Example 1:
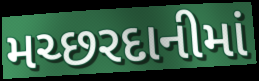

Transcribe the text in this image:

મચ્છરદાનીમાં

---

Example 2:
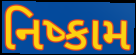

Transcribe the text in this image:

નિષ્કામ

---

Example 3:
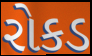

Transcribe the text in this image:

રોકડ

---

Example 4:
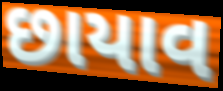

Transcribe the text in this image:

છાયાવ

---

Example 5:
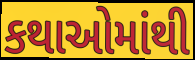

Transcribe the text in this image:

કથાઓમાંથી